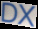
DX